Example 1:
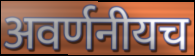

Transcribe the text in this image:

अवर्णनीयच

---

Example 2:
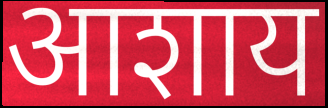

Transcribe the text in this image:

आशाय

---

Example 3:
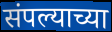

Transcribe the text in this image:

संपल्याच्या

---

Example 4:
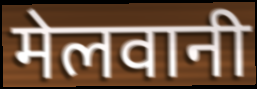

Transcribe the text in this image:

मेलवानी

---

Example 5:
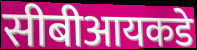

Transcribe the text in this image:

सीबीआयकडे